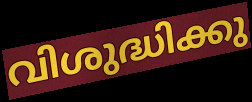
വിശുദ്ധിക്കു